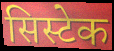
सिस्टेक